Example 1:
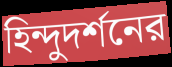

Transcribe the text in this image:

হিন্দুদর্শনের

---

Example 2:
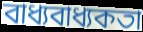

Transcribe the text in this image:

বাধ্যবাধ্যকতা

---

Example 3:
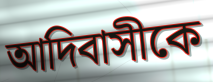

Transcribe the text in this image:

আদিবাসীকে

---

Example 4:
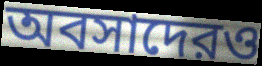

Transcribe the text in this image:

অবসাদেরও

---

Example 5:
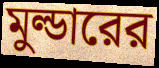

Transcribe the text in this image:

মুল্ডারের